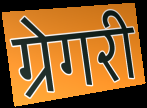
ग्रेगरी